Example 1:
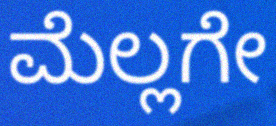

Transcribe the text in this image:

ಮೆಲ್ಲಗೇ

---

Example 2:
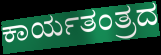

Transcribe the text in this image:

ಕಾರ್ಯತಂತ್ರದ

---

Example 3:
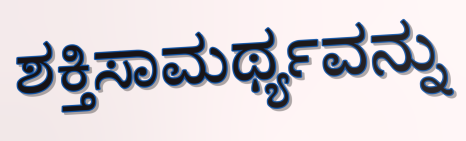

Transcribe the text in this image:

ಶಕ್ತಿಸಾಮರ್ಥ್ಯವನ್ನು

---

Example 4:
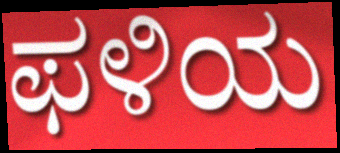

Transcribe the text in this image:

ಫಳಿಯ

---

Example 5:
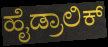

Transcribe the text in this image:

ಹೈಡ್ರಾಲಿಕ್